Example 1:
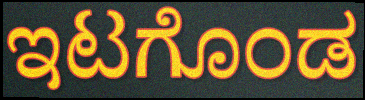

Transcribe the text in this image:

ಇಟಗೊಂಡ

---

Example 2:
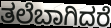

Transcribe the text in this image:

ತಲೆಬಾಗಿದರೆ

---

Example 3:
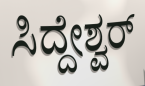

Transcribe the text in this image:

ಸಿದ್ದೇಶ್ವರ್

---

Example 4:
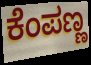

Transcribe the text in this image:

ಕೆಂಪಣ್ಣ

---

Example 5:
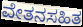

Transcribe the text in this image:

ವೇತನಸಹಿತ